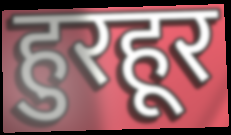
हुरहूर